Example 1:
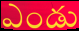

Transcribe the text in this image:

ఎండు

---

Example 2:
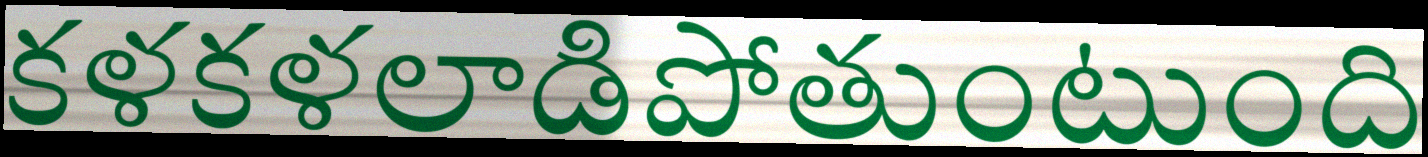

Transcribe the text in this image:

కళకళలాడిపోతుంటుంది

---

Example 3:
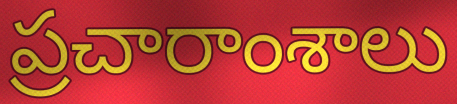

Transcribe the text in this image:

ప్రచారాంశాలు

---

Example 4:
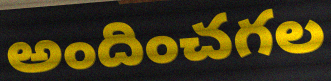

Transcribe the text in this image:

అందించగల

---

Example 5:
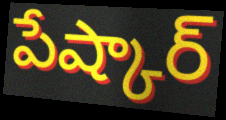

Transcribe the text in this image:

పేష్కార్